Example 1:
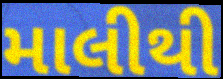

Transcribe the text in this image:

માલીથી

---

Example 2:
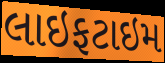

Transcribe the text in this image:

લાઇફટાઇમ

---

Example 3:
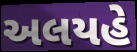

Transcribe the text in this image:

અલયહે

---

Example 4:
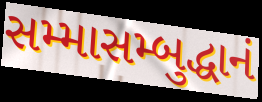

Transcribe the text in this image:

સમ્માસમ્બુદ્ધાનં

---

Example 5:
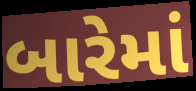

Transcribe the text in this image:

બારેમાં